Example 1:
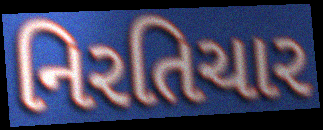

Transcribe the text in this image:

નિરતિચાર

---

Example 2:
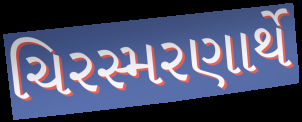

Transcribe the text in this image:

ચિરસ્મરણાર્થે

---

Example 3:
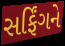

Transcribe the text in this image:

સર્ફિંગને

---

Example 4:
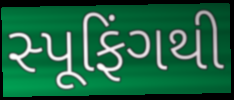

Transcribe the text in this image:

સ્પૂફિંગથી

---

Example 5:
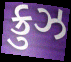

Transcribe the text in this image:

ક્રુઝ